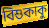
বিশুকাকু